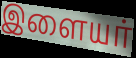
இளையர்